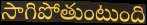
సాగిపోతుంటుంది